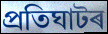
প্ৰতিঘাটৰ